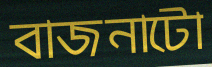
বাজনাটো